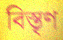
বিস্তৃণ